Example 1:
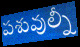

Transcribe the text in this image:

పశువుల్నీ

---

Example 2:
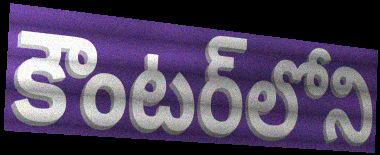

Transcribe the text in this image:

కౌంటర్‌లోని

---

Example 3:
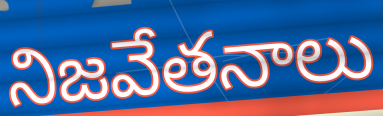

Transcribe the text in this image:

నిజవేతనాలు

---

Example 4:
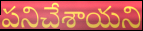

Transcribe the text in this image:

పనిచేశాయని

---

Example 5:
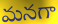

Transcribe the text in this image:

మనగా